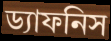
ড্যাফনিস